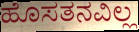
ಹೊಸತನವಿಲ್ಲ